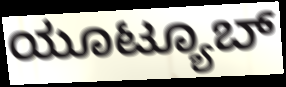
ಯೂಟ್ಯೂಬ್